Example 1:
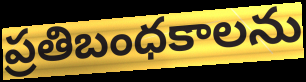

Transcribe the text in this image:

ప్రతిబంధకాలను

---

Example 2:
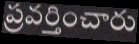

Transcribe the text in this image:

ప్రవర్తించారు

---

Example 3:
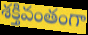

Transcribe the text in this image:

శక్తివంతంగా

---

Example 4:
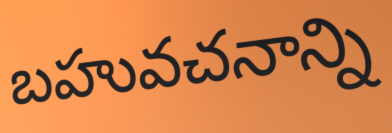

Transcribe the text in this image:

బహువచనాన్ని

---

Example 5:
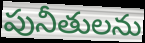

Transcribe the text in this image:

పునీతులను